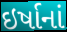
ઇર્ષાનાં